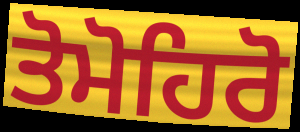
ਤੋਮੋਹਿਰੋ